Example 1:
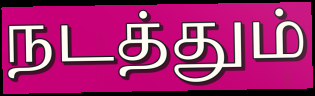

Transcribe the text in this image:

நடத்தும்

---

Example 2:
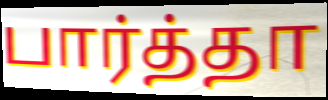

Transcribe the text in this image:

பார்த்தா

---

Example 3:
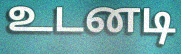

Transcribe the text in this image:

உடனடி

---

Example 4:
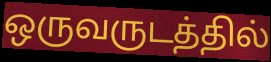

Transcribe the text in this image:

ஒருவருடத்தில்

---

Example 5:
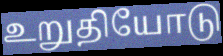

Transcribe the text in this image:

உறுதியோடு